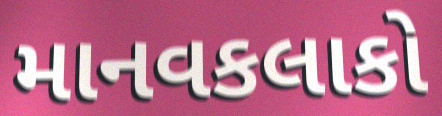
માનવકલાકો